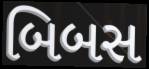
બિબસ